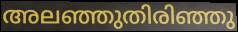
അലഞ്ഞുതിരിഞ്ഞു